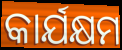
କାର୍ଯକ୍ଷମ